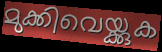
മുക്കിവെയ്ക്കുക